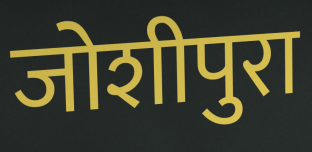
जोशीपुरा